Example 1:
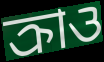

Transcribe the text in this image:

ক্রাও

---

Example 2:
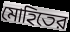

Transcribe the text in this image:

মোহিতের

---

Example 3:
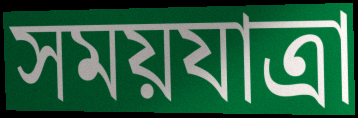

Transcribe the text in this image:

সময়যাত্রা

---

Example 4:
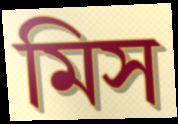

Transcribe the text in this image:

মিস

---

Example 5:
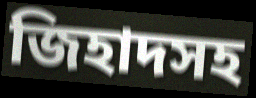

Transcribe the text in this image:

জিহাদসহ